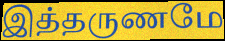
இத்தருணமே